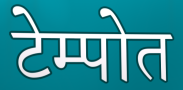
टेम्पोत